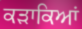
ਕੜਾਕਿਆਂ